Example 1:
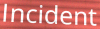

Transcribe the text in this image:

Incident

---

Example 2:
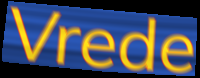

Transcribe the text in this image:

Vrede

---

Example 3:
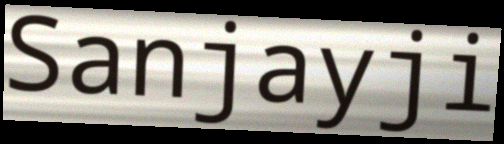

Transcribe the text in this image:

Sanjayji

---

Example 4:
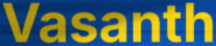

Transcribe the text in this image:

Vasanth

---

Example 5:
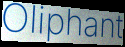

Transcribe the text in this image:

Oliphant